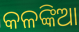
କଳଙ୍କିଆ